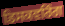
ਡਿਸਕਵਰਿੰਗ